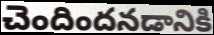
చెందిందనడానికి